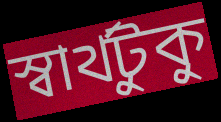
স্বার্থটুকু